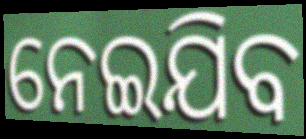
ନେଇଯିବ